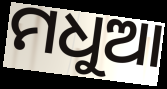
ମଧୁଆ